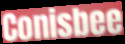
Conisbee